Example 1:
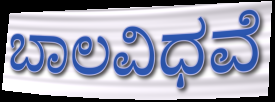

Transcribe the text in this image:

ಬಾಲವಿಧವೆ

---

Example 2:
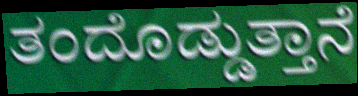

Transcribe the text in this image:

ತಂದೊಡ್ಡುತ್ತಾನೆ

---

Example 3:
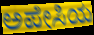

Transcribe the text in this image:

ಅಪೇಸಿಯ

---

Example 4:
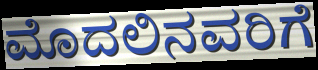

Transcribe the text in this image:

ಮೊದಲಿನವರಿಗೆ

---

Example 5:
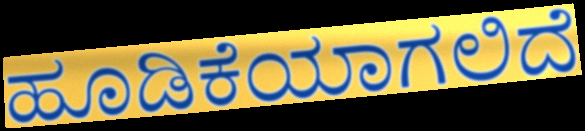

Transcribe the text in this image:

ಹೂಡಿಕೆಯಾಗಲಿದೆ